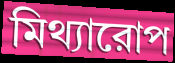
মিথ্যারোপ